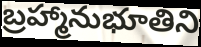
బ్రహ్మానుభూతిని